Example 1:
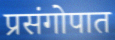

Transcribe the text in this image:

प्रसंगोपात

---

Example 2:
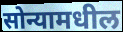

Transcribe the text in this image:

सोन्यामधील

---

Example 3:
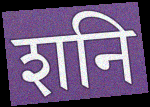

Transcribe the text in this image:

शनि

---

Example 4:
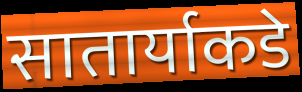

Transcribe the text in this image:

सातार्याकडे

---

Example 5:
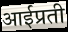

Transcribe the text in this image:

आईप्रती